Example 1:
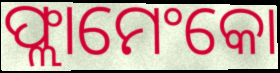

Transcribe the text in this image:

ଫ୍ଲାମେଂକୋ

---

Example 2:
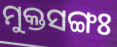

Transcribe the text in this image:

ମୁକ୍ତସଙ୍ଗଃ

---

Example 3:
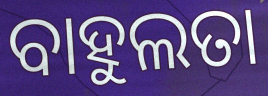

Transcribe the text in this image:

ବାହୁଲତା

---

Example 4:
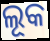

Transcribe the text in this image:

ଲୂକ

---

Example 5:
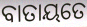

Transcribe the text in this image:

ବାତାୟତେ